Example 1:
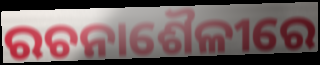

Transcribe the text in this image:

ରଚନାଶୈଳୀରେ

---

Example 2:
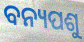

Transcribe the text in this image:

ବନ୍ୟପଶୁ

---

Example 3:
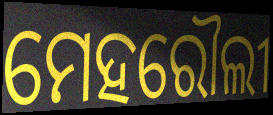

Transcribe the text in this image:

ମେହରୌଲୀ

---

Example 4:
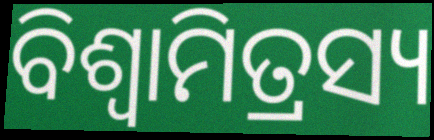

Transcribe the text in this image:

ବିଶ୍ଵାମିତ୍ରସ୍ୟ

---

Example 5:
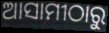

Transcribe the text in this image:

ଆସାମୀଠାରୁ